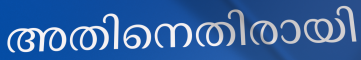
അതിനെതിരായി